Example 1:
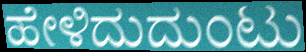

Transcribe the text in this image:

ಹೇಳಿದುದುಂಟು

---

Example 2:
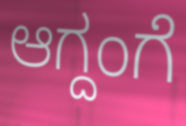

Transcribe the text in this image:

ಆಗ್ದಂಗೆ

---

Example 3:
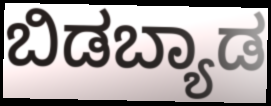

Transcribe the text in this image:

ಬಿಡಬ್ಯಾಡ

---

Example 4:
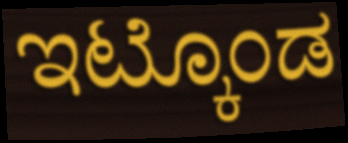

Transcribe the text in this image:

ಇಟ್ಕೊಂಡ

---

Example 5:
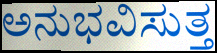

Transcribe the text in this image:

ಅನುಭವಿಸುತ್ತ